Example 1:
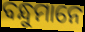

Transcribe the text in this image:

ବନ୍ଧୁମାନେ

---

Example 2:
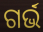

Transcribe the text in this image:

ଗର୍ଭ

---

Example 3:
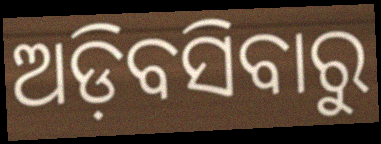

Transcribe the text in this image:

ଅଡ଼ିବସିବାରୁ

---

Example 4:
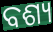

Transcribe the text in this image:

ବଶ୍ୟ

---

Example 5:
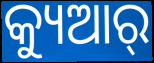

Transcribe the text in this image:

କ୍ୟୁଆର୍